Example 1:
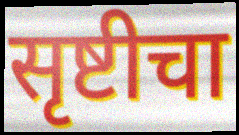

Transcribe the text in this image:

सृष्टीचा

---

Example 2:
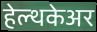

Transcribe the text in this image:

हेल्थकेअर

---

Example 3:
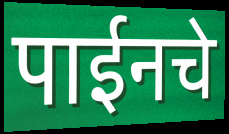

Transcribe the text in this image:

पाईनचे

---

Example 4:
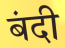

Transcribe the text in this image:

बंदी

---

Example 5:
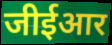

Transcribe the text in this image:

जीईआर